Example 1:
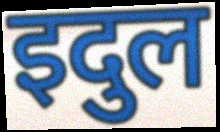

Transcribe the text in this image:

इदुल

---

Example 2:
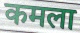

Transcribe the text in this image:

कमला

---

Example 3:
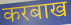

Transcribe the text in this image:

करबाख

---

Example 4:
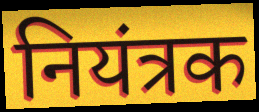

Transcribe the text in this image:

नियंत्रक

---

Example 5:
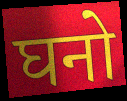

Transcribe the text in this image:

घनो